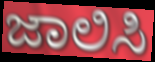
ಜಾಲಿಸಿ